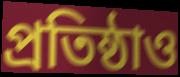
প্রতিষ্ঠাও